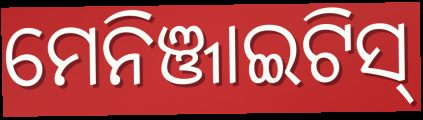
ମେନିଞ୍ଜାଇଟିସ୍